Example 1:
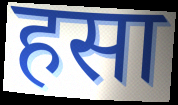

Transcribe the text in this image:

हसा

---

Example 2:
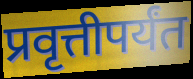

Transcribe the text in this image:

प्रवृत्तीपर्यंत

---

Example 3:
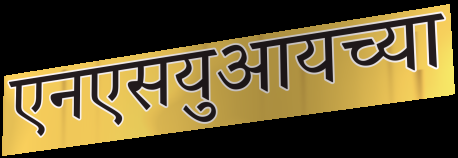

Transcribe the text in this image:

एनएसयुआयच्या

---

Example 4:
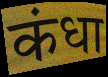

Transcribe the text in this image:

कंधा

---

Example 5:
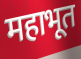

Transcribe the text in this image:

महाभूत